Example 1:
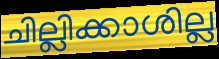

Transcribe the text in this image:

ചില്ലിക്കാശില്ല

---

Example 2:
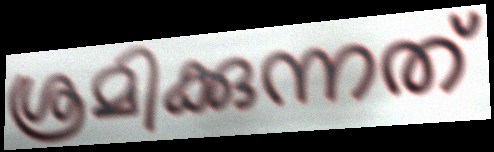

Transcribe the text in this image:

ശ്രമിക്കുന്നത്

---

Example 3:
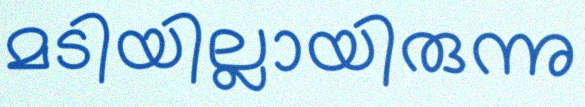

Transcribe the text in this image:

മടിയില്ലായിരുന്നു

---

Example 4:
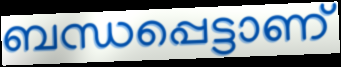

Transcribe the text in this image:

ബന്ധപ്പെട്ടാണ്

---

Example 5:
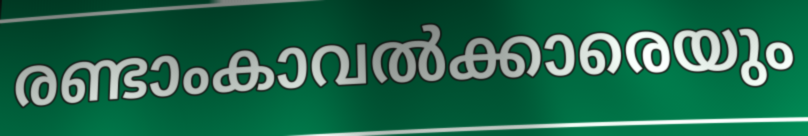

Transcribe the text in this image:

രണ്ടാംകാവൽക്കാരെയും